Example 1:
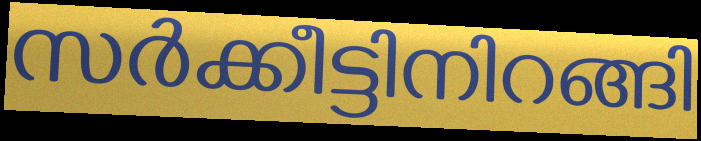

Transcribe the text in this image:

സർക്കീട്ടിനിറങ്ങി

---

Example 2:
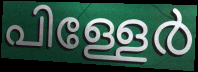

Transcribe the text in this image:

പിള്ളേർ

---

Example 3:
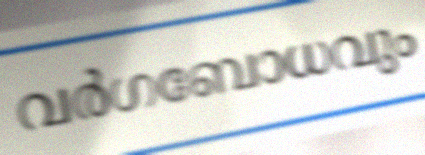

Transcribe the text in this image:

വർഗബോധവും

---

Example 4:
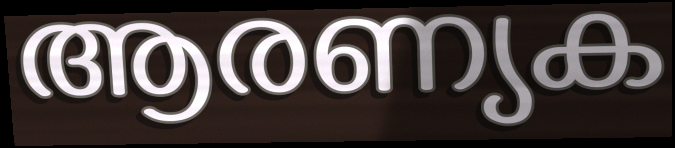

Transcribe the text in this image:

ആരണ്യക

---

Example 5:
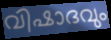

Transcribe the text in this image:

വിഷാദവും